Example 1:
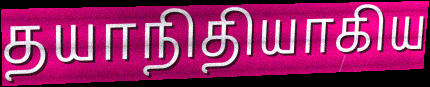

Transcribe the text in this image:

தயாநிதியாகிய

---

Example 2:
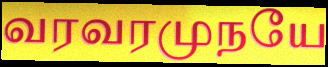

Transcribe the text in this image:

வரவரமுநயே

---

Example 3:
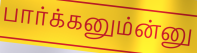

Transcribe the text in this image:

பார்க்கனும்ன்னு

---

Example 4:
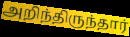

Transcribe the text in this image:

அறிந்திருந்தார்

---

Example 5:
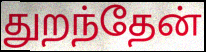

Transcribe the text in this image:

துறந்தேன்